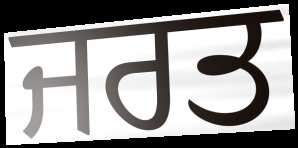
ਜਰਤ